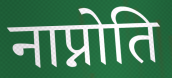
नाप्नोति